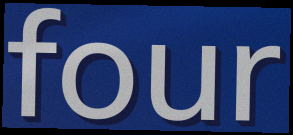
four